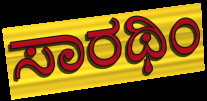
ಸಾರಥಿಂ